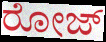
ರೋಜ್